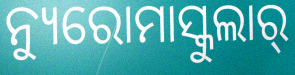
ନ୍ୟୁରୋମାସ୍କୁଲାର୍